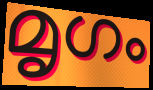
മൃഗം